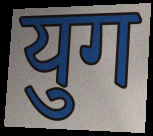
युग